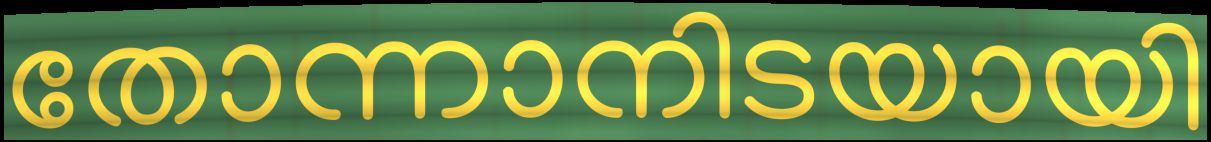
തോന്നാനിടയായി